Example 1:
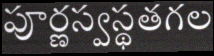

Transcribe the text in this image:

పూర్ణస్వస్థతగల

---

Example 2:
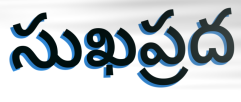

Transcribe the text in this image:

సుఖప్రద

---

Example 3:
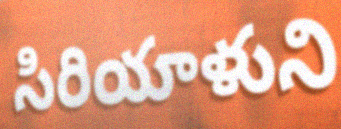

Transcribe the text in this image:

సిరియాళుని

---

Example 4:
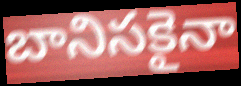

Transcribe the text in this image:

బానిసకైనా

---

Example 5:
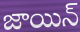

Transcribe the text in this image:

జాయిన్